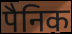
पैनिक